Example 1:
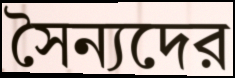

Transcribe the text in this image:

সৈন্যদের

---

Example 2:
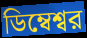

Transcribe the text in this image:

ডিম্বেশ্বর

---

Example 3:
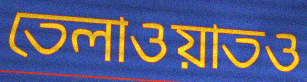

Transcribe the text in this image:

তেলাওয়াতও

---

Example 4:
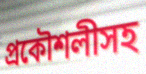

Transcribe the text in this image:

প্রকৌশলীসহ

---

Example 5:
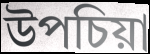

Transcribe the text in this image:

উপচিয়া